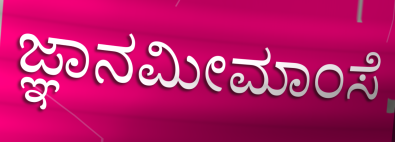
ಜ್ಞಾನಮೀಮಾಂಸೆ